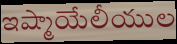
ఇష్మాయేలీయుల